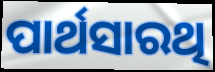
ପାର୍ଥସାରଥି